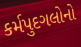
કર્મપુદગલોનો